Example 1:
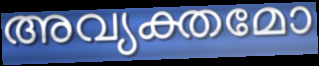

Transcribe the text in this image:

അവ്യക്തമോ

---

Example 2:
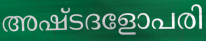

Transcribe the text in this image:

അഷ്ടദളോപരി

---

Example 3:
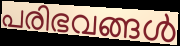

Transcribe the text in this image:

പരിഭവങ്ങൾ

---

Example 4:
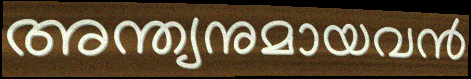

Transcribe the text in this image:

അന്ത്യനുമായവൻ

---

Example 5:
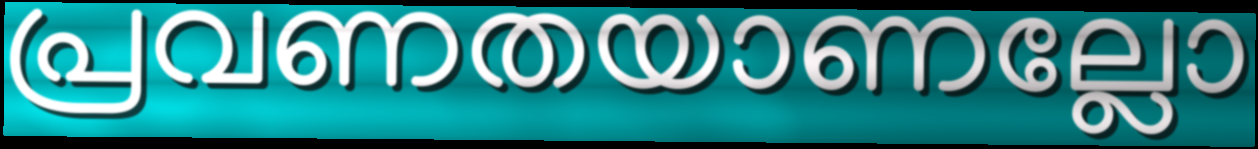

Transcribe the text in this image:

പ്രവണതയാണല്ലോ